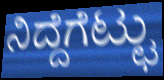
ನಿದ್ದೆಗೆಟ್ಟು